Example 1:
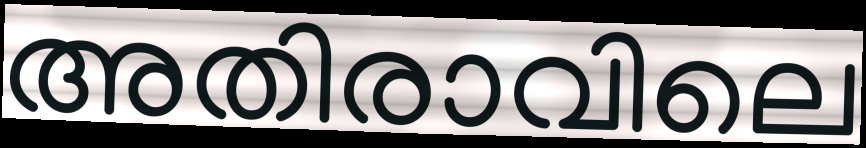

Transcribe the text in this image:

അതിരാവിലെ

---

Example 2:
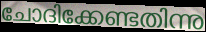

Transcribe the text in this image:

ചോദിക്കേണ്ടതിന്നു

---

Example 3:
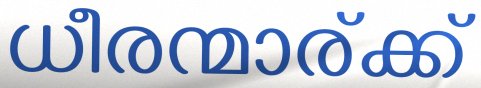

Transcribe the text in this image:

ധീരന്മാര്ക്ക്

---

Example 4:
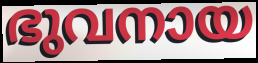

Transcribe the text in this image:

ഭുവനായ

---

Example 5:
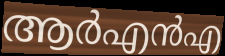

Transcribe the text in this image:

ആർഎൻഎ